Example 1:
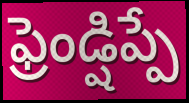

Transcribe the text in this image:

ఫ్రెండ్షిప్పే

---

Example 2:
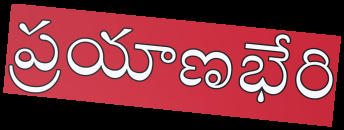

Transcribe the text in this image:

ప్రయాణభేరి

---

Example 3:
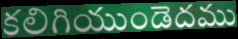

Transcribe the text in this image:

కలిగియుండెదము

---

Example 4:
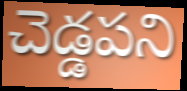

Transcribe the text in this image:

చెడ్డపని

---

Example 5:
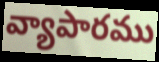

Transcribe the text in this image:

వ్యాపారము